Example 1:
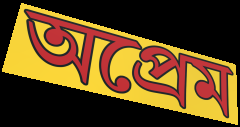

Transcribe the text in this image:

অপ্রেম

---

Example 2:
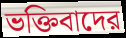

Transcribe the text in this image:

ভক্তিবাদের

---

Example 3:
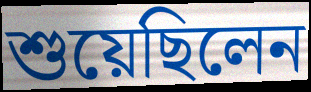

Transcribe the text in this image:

শুয়েছিলেন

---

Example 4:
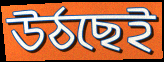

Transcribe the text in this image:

উঠছেই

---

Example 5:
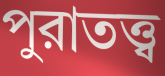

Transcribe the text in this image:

পুরাতত্ত্ব